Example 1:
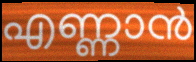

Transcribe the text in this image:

എണ്ണാൻ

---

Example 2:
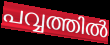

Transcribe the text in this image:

പവ്വത്തിൽ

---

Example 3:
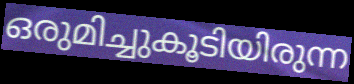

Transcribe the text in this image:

ഒരുമിച്ചുകൂടിയിരുന്ന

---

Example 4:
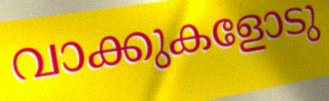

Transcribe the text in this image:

വാക്കുകളോടു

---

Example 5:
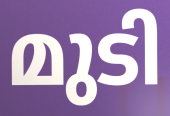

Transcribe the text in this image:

മുടി